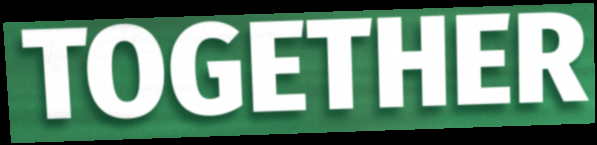
TOGETHER